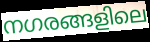
നഗരങ്ങളിലെ